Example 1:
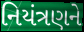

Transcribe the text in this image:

નિયંત્રણને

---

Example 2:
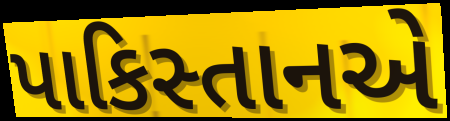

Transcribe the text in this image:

પાકિસ્તાનએ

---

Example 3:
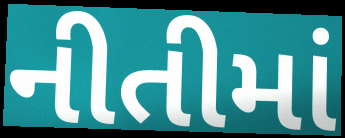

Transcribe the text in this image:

નીતીમાં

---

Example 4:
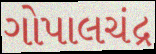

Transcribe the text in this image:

ગોપાલચંદ્ર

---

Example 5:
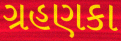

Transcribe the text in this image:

ગ્રહણકા